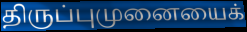
திருப்புமுனையைக்